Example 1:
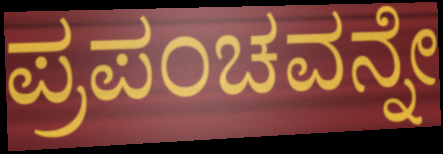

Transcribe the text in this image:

ಪ್ರಪಂಚವನ್ನೇ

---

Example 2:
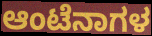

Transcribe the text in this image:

ಆಂಟೆನಾಗಳ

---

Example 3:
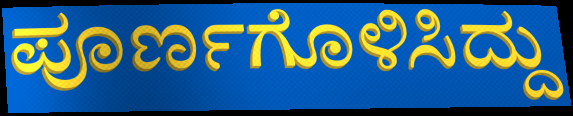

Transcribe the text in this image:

ಪೂರ್ಣಗೊಳಿಸಿದ್ದು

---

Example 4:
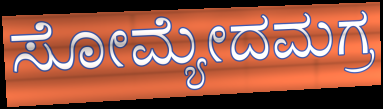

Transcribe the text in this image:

ಸೋಮ್ಯೇದಮಗ್ರ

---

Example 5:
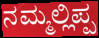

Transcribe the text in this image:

ನಮ್ಮಲ್ಲಿಪ್ಪ